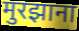
मुरझाना